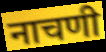
नाचणी